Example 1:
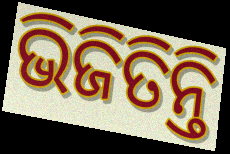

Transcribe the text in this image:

ଭିଜିତିନ୍ତି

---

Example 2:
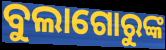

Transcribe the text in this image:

ବୁଲାଗୋରୁଙ୍କ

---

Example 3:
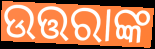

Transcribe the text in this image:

ଉତ୍ତରାଙ୍କ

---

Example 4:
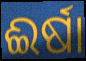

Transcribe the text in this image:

ଈର୍ଷା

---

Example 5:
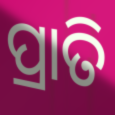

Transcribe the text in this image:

ପ୍ରାତି